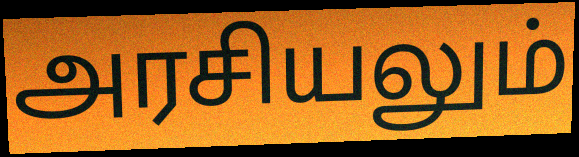
அரசியலும்